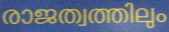
രാജത്വത്തിലും